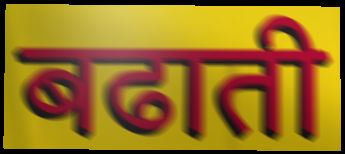
बढाती